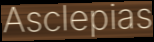
Asclepias